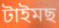
টাইমছ